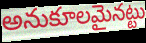
అనుకూలమైనట్టు